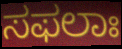
ಸಫಲಾಃ